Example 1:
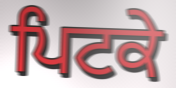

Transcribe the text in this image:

ਪਿਟਕੇ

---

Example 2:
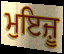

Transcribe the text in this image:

ਮੁਇਜ਼ੂ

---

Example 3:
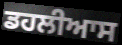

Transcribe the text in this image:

ਡਹਲੀਆਸ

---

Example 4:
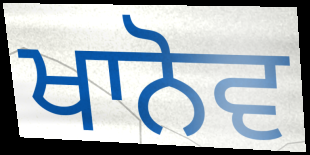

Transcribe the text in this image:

ਖਾਨੋਵ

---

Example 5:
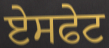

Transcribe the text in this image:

ਏਸਫੇਟ